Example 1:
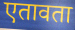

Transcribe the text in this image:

एतावता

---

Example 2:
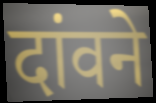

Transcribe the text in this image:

दांवने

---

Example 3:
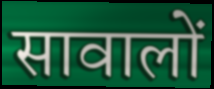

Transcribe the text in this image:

सावालों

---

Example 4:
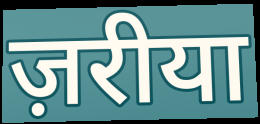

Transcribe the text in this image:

ज़रीया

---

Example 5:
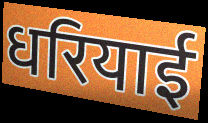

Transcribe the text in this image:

धरियाई